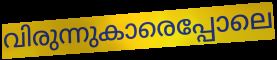
വിരുന്നുകാരെപ്പോലെ